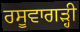
ਰਸੂਵਾਗੜ੍ਹੀ